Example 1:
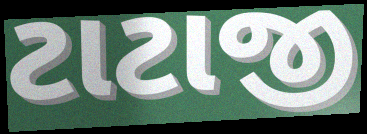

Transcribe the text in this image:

ટાટાજી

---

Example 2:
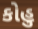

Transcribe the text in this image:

કોહુ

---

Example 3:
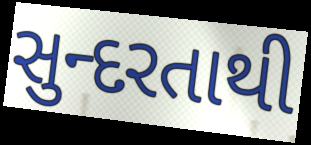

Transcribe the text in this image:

સુન્દરતાથી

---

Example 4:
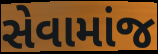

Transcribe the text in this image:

સેવામાંજ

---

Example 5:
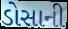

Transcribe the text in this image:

ડોસાની